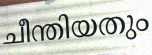
ചീന്തിയതും